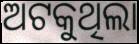
ଅଟକୁଥିଲା